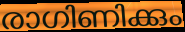
രാഗിണിക്കും